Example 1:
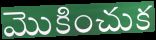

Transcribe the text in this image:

మొకించుక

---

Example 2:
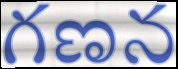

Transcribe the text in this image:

గణన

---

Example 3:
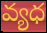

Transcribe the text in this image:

వ్యధ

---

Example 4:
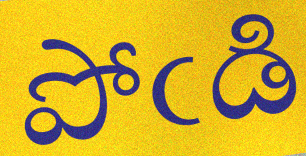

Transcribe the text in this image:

పోఁడి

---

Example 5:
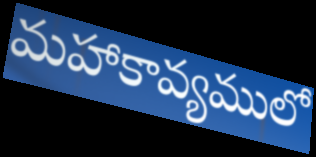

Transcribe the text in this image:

మహాకావ్యములో